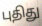
புதிது